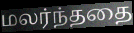
மலர்ந்ததை